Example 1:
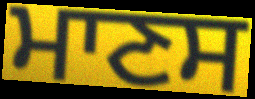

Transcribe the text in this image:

ਮਾਣਸ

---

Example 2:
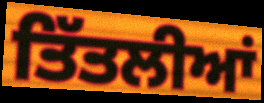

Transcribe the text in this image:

ਤਿੱਤਲੀਆਂ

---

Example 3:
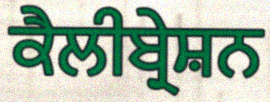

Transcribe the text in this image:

ਕੈਲੀਬ੍ਰੇਸ਼ਨ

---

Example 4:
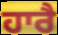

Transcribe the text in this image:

ਹਾਰੈ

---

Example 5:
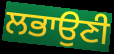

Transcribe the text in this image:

ਲਭਾਉਣੀ